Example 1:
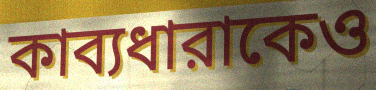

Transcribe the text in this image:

কাব্যধারাকেও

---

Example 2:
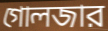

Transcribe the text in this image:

গোলজার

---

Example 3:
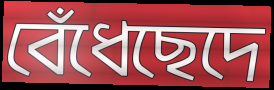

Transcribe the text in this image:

বেঁধেছেদে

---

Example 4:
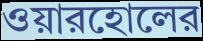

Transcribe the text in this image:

ওয়ারহোলের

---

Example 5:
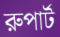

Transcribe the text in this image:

রুপার্ট